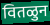
वितळुन